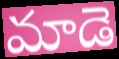
మాడె